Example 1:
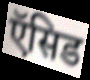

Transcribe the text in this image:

ऍसिड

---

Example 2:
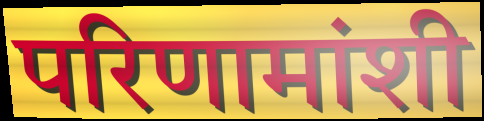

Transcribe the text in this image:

परिणामांशी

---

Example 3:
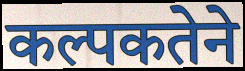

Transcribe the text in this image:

कल्पकतेने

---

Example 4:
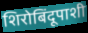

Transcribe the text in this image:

शिरोबिंदूपाशी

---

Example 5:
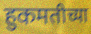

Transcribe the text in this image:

हुकमतीच्या